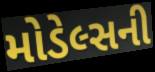
મોડેલ્સની